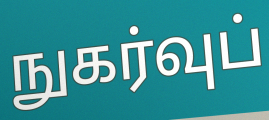
நுகர்வுப்